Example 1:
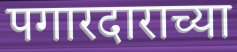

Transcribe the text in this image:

पगारदाराच्या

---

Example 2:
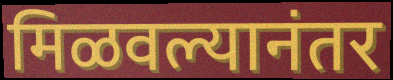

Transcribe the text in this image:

मिळवल्यानंतर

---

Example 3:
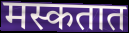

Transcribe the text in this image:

मस्कतात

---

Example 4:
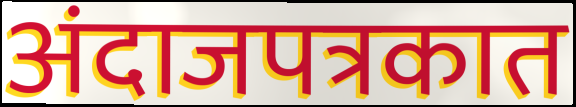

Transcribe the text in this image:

अंदाजपत्रकात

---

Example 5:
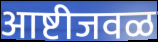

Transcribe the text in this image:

आष्टीजवळ